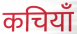
कचियाँ